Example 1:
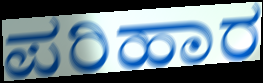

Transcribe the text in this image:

ಪರಿಹಾರ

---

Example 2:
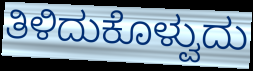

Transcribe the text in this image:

ತಿಳಿದುಕೊಳ್ವುದು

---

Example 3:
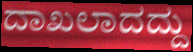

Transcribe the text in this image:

ದಾಖಲಾದದ್ದು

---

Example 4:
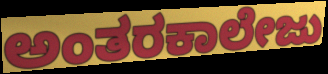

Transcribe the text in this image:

ಅಂತರಕಾಲೇಜು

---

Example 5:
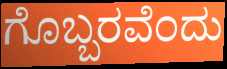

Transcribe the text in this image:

ಗೊಬ್ಬರವೆಂದು